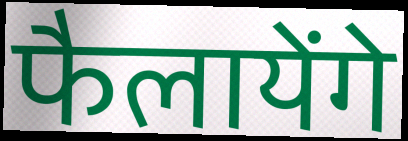
फैलायेंगे